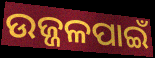
ଉଜ୍ଜଳପାଇଁ